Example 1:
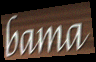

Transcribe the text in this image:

bama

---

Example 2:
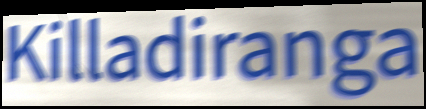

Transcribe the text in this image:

Killadiranga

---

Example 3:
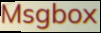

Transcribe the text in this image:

Msgbox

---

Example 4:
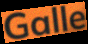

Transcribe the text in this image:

Galle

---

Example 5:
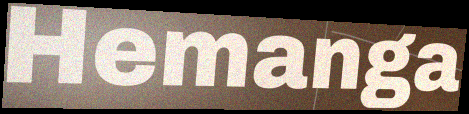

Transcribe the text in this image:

Hemanga